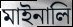
মাইনালি